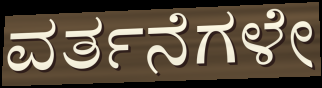
ವರ್ತನೆಗಳೇ